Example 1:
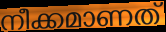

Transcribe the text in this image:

നീക്കമാണത്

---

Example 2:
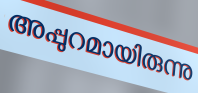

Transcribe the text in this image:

അപ്പുറമായിരുന്നു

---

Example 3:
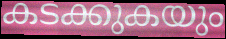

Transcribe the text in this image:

കടക്കുകയും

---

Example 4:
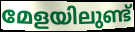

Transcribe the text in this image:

മേളയിലുണ്ട്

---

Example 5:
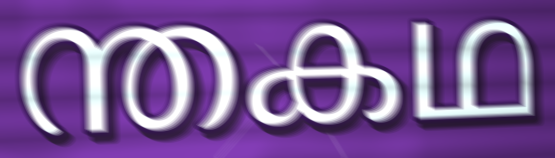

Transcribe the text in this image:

ന്തകഥ